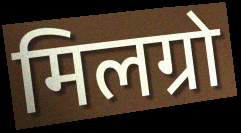
मिलग्रो